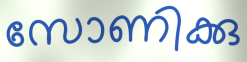
സോണിക്കു